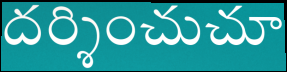
దర్శించుచూ